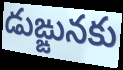
డుఙ్ఙునకు